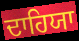
ਦਾਹਿਯਾ